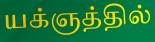
யக்ஞத்தில்